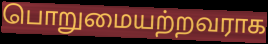
பொறுமையற்றவராக